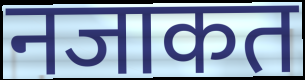
नजाकत